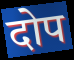
दोप